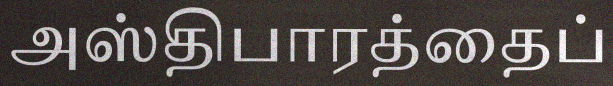
அஸ்திபாரத்தைப்